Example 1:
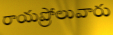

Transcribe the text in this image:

రాయప్రోలువారు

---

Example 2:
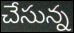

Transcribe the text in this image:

చేసున్న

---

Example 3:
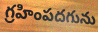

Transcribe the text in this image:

గ్రహింపదగును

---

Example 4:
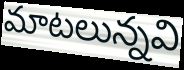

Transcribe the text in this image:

మాటలున్నవి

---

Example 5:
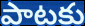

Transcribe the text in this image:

పాటకు